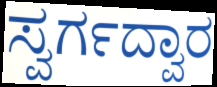
ಸ್ವರ್ಗದ್ವಾರ